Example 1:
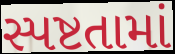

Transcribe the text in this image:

સ્પષ્ટતામાં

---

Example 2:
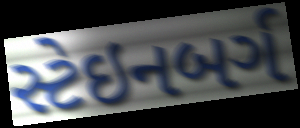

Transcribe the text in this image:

સ્ટેઇનબર્ગ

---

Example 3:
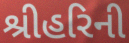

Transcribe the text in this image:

શ્રીહરિની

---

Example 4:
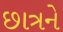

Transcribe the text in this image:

છાત્રને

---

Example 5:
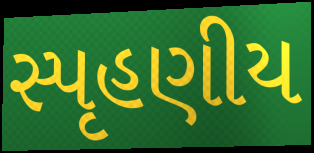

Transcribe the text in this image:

સ્પૃહણીય